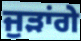
ਜੁੜਾਂਗੇ